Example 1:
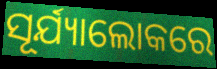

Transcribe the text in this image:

ସୂର୍ଯ୍ୟାଲୋକରେ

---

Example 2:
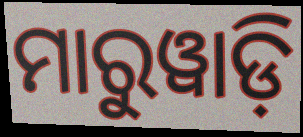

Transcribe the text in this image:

ମାରୁୱାଡ଼ି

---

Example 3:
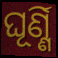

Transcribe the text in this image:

ଘୂର୍ଣ୍ଣି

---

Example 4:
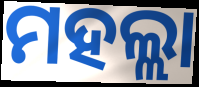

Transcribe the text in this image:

ମହଲ୍ଲା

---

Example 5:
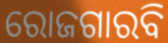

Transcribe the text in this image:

ରୋଜଗାରବି